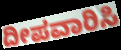
ದೀಪವಾರಿಸಿ